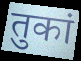
तुकां